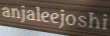
anjaleejoshi